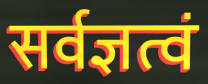
सर्वज्ञत्वं